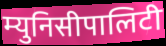
म्युनिसीपालिटी